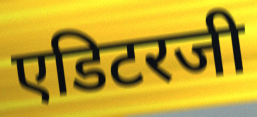
एडिटरजी